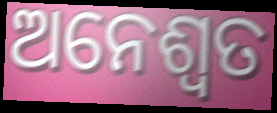
ଅନେଶ୍ଵତ